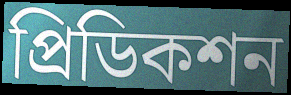
প্রিডিকশন